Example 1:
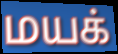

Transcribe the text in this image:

மயக்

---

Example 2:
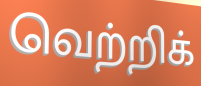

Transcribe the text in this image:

வெற்றிக்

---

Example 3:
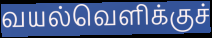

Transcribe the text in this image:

வயல்வெளிக்குச்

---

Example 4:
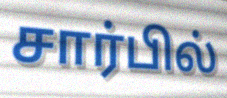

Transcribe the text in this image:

சார்பில்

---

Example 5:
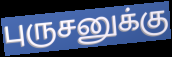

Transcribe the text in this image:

புருசனுக்கு